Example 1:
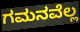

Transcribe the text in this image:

ಗಮನವೆಲ್ಲ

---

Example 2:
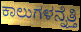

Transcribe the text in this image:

ಕಾಲುಗಳನ್ನೆತ್ತಿ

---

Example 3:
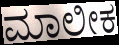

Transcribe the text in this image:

ಮಾಲೀಕ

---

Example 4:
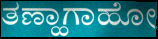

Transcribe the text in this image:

ತಣ್ಹಾಗಾಹೋ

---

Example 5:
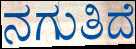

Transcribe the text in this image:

ನಗುತಿದೆ